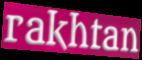
rakhtan